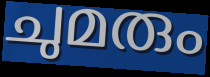
ചുമരും